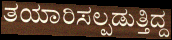
ತಯಾರಿಸಲ್ಪಡುತ್ತಿದ್ದ